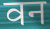
वन